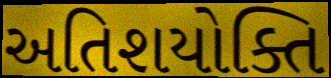
અતિશયોક્તિ